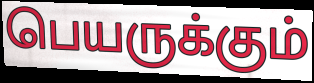
பெயருக்கும்